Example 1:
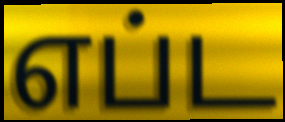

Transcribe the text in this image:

எப்ட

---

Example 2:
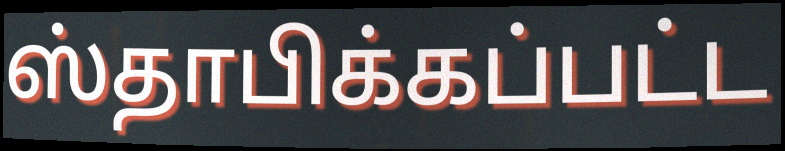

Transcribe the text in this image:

ஸ்தாபிக்கப்பட்ட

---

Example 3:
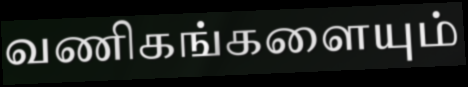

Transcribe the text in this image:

வணிகங்களையும்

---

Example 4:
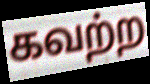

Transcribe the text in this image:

கவற்ற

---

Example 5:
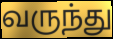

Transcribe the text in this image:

வருந்து